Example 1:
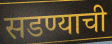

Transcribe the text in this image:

सडण्याची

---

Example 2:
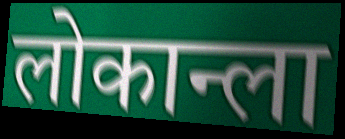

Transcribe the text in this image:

लोकान्ला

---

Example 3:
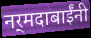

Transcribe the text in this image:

नर्मदाबाईंनी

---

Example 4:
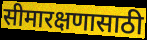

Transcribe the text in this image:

सीमारक्षणासाठी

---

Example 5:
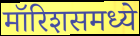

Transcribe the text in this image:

मॉरिशसमध्ये